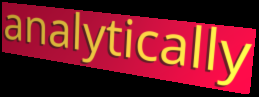
analytically